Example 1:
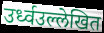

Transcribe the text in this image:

उर्ध्वउल्लेखित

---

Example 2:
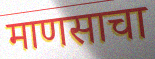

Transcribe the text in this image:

माणसाचा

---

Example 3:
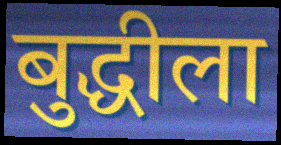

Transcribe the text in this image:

बुद्धीला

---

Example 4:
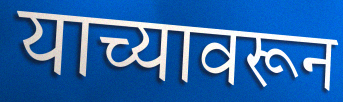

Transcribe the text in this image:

याच्यावरून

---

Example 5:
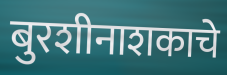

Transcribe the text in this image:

बुरशीनाशकाचे